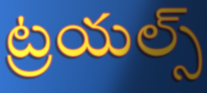
ట్రయల్స్